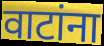
वाटांना